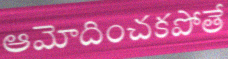
ఆమోదించకపోతే